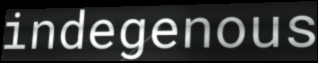
indegenous